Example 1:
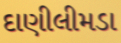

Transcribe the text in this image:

દાણીલીમડા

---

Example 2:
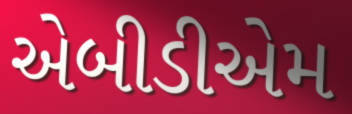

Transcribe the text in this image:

એબીડીએમ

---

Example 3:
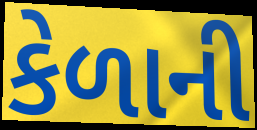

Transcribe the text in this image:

કેળાની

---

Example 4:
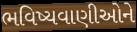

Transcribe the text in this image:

ભવિષ્યવાણીઓને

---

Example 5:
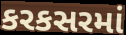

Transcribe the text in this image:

કરકસરમાં